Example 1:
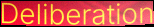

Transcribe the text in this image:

Deliberation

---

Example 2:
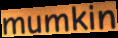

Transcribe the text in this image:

mumkin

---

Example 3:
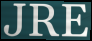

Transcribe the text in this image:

JRE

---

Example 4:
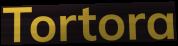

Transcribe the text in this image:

Tortora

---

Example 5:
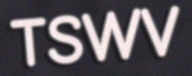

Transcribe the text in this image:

TSWV